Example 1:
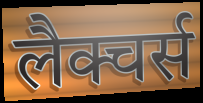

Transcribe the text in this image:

लैक्चर्स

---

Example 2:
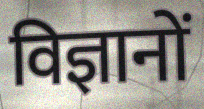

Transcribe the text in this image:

विज्ञानों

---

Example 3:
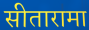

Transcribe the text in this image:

सीतारामा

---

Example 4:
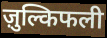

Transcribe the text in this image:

ज़ुल्किफली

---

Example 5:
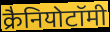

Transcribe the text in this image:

क्रैनियोटॉमी